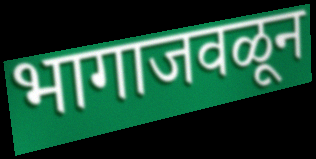
भागाजवळून